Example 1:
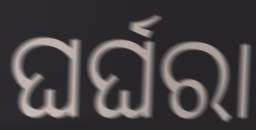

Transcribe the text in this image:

ଘର୍ଘରା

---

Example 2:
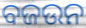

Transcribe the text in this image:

ବଜଉନ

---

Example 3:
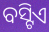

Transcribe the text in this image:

ବସ୍ଟିଏ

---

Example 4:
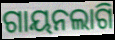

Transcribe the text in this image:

ଗାୟନଲାଗି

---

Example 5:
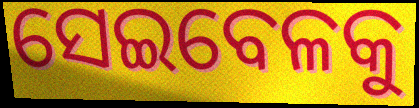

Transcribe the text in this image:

ସେଇବେଳକୁ